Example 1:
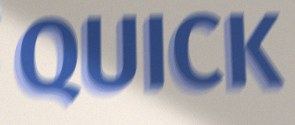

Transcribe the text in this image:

QUICK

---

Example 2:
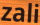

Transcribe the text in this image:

zali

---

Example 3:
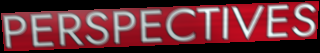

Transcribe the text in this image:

PERSPECTIVES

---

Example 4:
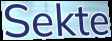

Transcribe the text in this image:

Sekte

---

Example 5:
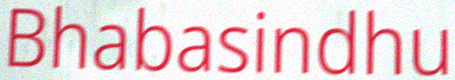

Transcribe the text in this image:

Bhabasindhu